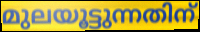
മുലയൂട്ടുന്നതിന്